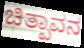
ಚಿತ್ಪಾವನ